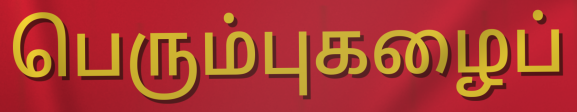
பெரும்புகழைப்